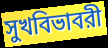
সুখবিভাবরী